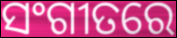
ସଂଗୀତରେ